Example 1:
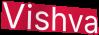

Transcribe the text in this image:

Vishva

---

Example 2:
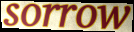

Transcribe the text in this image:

sorrow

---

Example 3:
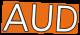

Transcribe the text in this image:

AUD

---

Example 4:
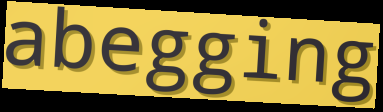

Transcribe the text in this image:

abegging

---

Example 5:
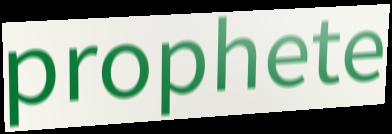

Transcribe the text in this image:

prophete